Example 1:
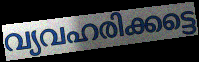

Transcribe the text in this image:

വ്യവഹരിക്കട്ടെ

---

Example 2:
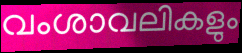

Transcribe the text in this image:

വംശാവലികളും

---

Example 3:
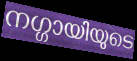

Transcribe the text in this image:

നഗ്ഗായിയുടെ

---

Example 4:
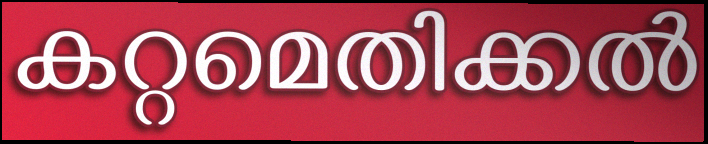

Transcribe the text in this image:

കറ്റമെതിക്കൽ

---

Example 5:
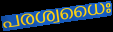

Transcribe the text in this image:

പരശ്വധൈഃ